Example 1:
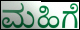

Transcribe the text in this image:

ಮಹಿಗೆ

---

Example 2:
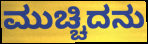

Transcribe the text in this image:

ಮುಚ್ಚಿದನು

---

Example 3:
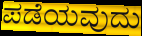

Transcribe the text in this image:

ಪಡೆಯವುದು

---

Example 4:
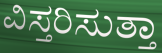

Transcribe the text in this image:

ವಿಸ್ತರಿಸುತ್ತಾ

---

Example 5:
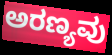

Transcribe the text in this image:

ಅರಣ್ಯವು